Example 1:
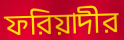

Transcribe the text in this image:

ফরিয়াদীর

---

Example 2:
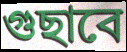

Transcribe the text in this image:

গুছাবে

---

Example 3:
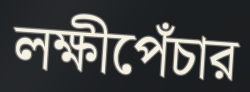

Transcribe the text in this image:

লক্ষীপেঁচার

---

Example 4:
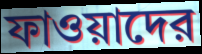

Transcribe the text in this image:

ফাওয়াদের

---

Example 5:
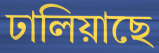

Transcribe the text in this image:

ঢালিয়াছে